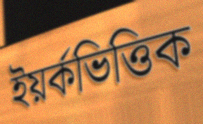
ইয়র্কভিত্তিক